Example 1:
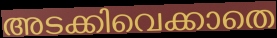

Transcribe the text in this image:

അടക്കിവെക്കാതെ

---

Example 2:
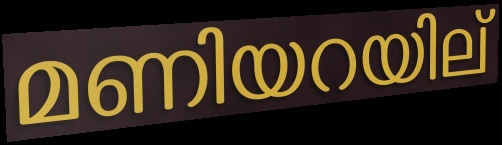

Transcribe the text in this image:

മണിയറയില്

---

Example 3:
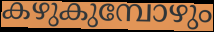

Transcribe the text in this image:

കഴുകുമ്പോഴും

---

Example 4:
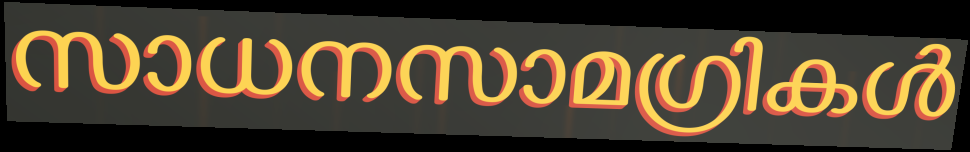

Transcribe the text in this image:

സാധനസാമഗ്രികൾ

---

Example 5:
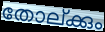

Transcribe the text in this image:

തോല്ക്കും